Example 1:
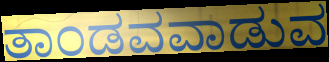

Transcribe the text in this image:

ತಾಂಡವವಾಡುವ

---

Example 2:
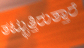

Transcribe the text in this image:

ತಟ್ಟುತ್ತಿರುತ್ತಾರೆ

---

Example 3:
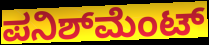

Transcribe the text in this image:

ಪನಿಶ್‌ಮೆಂಟ್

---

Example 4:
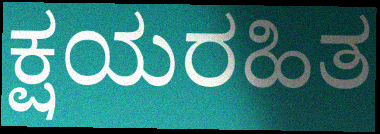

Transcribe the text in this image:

ಕ್ಷಯರಹಿತ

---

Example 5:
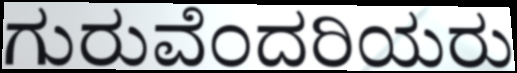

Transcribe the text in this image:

ಗುರುವೆಂದರಿಯರು